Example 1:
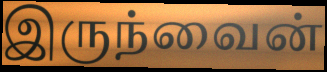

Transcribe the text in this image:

இருந்வைன்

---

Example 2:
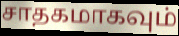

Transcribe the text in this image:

சாதகமாகவும்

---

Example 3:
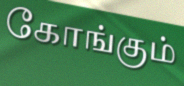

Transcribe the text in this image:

கோங்கும்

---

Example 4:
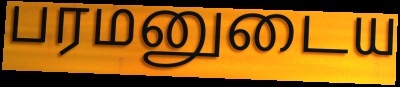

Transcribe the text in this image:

பரமனுடைய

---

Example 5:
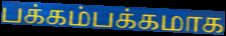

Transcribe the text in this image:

பக்கம்பக்கமாக